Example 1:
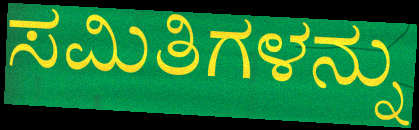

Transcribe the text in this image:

ಸಮಿತಿಗಳನ್ನು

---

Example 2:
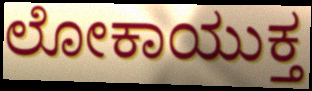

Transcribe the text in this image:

ಲೋಕಾಯುಕ್ತ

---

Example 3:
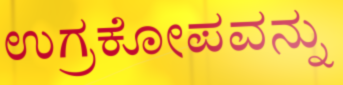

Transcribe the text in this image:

ಉಗ್ರಕೋಪವನ್ನು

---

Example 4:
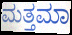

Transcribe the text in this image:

ಮತ್ತಮಾ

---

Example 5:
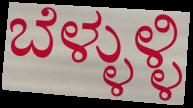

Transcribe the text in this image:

ಬೆಳ್ಳುಳ್ಳಿ